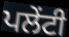
ਪਲੇਂਟੀ